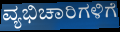
ವ್ಯಭಿಚಾರಿಗಳಿಗೆ